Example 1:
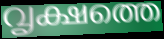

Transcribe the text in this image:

വൃക്ഷത്തെ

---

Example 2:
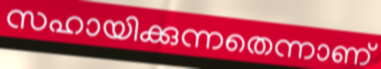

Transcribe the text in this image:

സഹായിക്കുന്നതെന്നാണ്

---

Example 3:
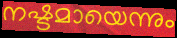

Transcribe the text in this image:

നഷ്ടമായെന്നും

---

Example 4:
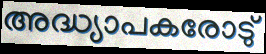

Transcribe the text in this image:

അദ്ധ്യാപകരോടു്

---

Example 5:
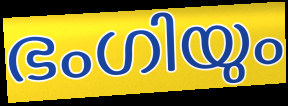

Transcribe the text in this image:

ഭംഗിയും